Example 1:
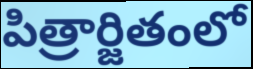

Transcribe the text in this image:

పిత్రార్జితంలో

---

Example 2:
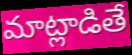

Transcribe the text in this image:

మాట్లాడితే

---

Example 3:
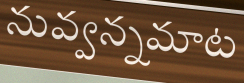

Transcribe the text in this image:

నువ్వన్నమాట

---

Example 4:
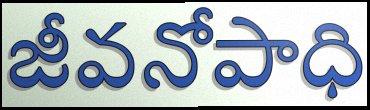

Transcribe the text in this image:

జీవనోపాధి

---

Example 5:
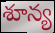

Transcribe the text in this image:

శూన్య